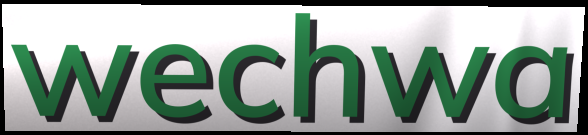
wechwa